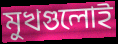
মুখগুলোই